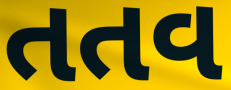
તતવ